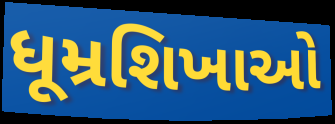
ધૂમ્રશિખાઓ